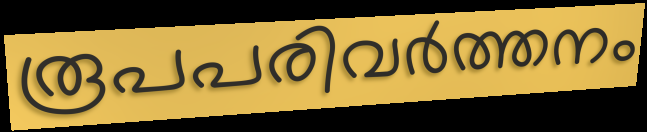
രൂപപരിവർത്തനം